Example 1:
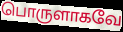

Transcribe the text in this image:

பொருளாகவே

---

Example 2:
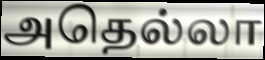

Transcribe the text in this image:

அதெல்லா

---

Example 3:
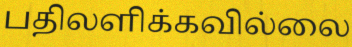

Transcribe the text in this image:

பதிலளிக்கவில்லை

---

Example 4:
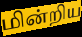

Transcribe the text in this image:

மின்றிய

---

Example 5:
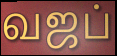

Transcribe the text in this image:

வஜப்